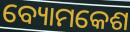
ବ୍ୟୋମକେଶ